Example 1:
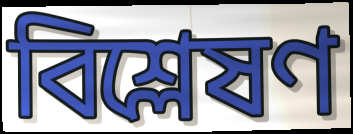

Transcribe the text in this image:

বিশ্লেষণ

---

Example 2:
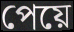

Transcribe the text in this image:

পেয়ে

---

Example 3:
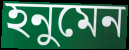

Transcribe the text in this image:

হনুমেন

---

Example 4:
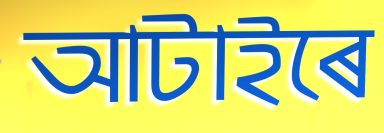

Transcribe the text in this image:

আটাইৰে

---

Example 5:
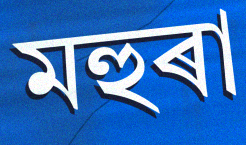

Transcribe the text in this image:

মহুৰা